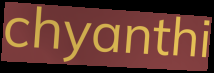
chyanthi